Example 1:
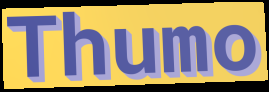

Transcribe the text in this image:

Thumo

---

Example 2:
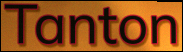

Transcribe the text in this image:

Tanton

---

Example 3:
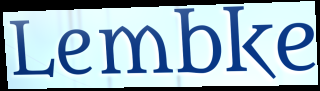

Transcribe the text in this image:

Lembke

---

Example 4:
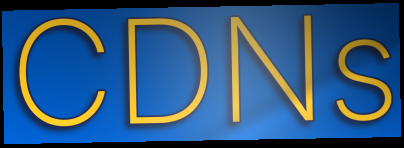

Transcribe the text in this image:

CDNs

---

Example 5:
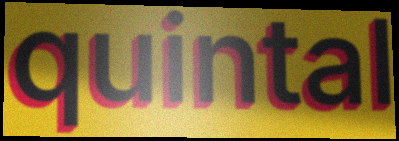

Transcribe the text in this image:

quintal